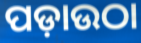
ପଡ଼ାଉଠା